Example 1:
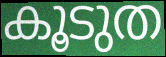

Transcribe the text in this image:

കൂടുത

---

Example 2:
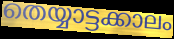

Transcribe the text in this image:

തെയ്യാട്ടക്കാലം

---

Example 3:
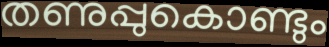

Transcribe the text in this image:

തണുപ്പുകൊണ്ടും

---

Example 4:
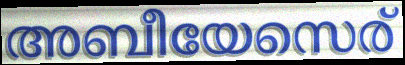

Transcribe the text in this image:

അബീയേസെര്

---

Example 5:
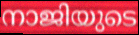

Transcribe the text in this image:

നാജിയുടെ